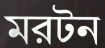
মরটন